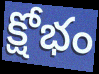
క్షోభం